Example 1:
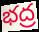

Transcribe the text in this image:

భద్ర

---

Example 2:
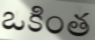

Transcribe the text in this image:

ఒకింత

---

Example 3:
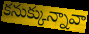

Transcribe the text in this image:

కనుక్కున్నావా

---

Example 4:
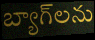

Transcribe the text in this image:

బ్యాగ్‌లను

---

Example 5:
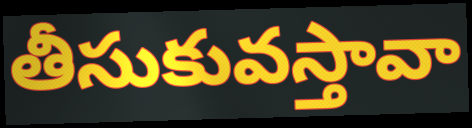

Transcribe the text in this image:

తీసుకువస్తావా